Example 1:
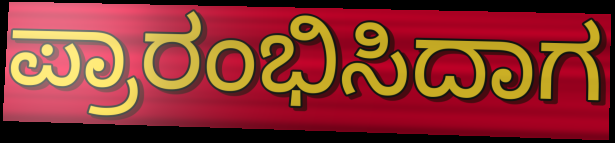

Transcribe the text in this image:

ಪ್ರಾರಂಭಿಸಿದಾಗ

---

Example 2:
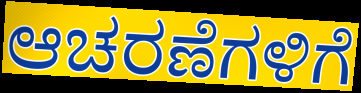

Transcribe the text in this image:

ಆಚರಣೆಗಳಿಗೆ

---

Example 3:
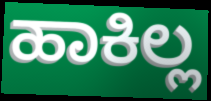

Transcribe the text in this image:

ಹಾಕಿಲ್ಲ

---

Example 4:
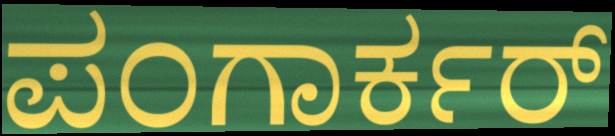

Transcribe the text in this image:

ಪಂಗಾರ್ಕರ್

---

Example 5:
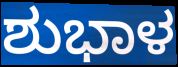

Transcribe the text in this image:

ಶುಭಾಳ